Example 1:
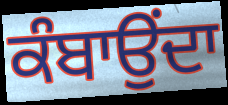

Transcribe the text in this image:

ਕੰਬਾਉਂਦਾ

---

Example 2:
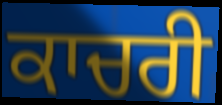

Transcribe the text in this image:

ਕਾਚਰੀ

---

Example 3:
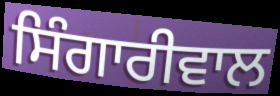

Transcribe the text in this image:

ਸਿੰਗਾਰੀਵਾਲ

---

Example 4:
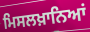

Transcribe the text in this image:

ਮਿਸਲਖ਼ਾਨਿਆਂ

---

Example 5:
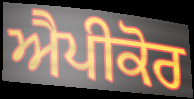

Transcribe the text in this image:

ਐਪੀਕੋਰ